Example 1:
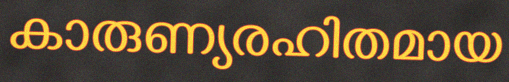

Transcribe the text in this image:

കാരുണ്യരഹിതമായ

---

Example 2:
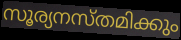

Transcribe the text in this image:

സൂര്യനസ്തമിക്കും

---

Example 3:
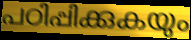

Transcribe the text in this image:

പഠിപ്പിക്കുകയും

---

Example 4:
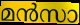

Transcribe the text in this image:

മൻസാ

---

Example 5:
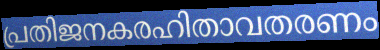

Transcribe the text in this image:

പ്രതിജനകരഹിതാവതരണം